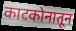
काटकोनातून